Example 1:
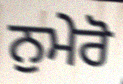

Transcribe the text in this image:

ਨੁਮੇਰੋ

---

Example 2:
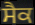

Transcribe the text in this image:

ਸੈਕ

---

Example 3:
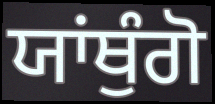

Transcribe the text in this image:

ਯਾਂਥੁੰਗੋ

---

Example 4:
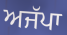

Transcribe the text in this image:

ਅਜੱਪਾ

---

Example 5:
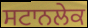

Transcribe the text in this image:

ਸਟਾਨਲੇਕ